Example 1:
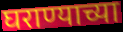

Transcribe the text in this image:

घराण्याच्या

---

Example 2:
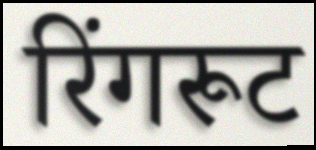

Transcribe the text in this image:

रिंगरूट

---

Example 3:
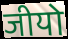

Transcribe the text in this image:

जीयो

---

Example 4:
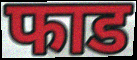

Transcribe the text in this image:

फाड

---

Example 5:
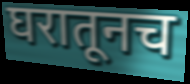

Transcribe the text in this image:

घरातूनच